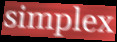
simplex